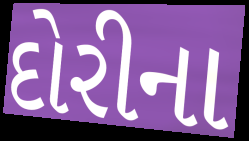
દોરીના